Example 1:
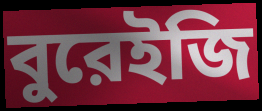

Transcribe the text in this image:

বুরেইজি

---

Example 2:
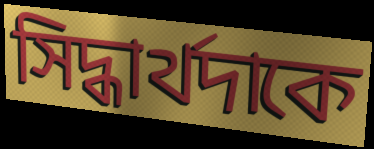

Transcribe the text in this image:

সিদ্ধার্থদাকে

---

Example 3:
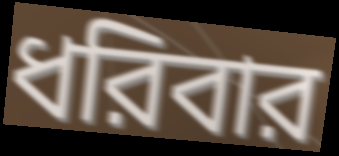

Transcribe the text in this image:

ধরিবার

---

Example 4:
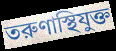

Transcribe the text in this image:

তরুণাস্থিযুক্ত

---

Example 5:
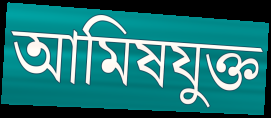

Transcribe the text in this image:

আমিষযুক্ত